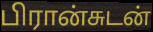
பிரான்சுடன்